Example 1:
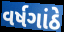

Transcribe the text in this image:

વર્ષગાંઠે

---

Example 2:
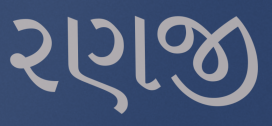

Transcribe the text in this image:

રણજી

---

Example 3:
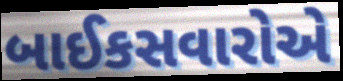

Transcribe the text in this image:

બાઈકસવારોએ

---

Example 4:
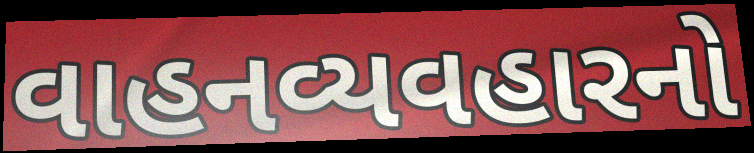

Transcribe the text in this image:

વાહનવ્યવહારનો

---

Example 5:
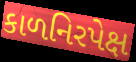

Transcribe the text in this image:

કાળનિરપેક્ષ